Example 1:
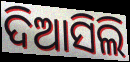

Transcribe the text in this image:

ଦିଆସିଲି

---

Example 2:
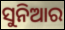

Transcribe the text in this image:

ସୁନିଆର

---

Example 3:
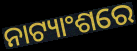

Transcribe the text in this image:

ନାଟ୍ୟାଂଶରେ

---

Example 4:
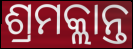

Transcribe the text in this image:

ଶ୍ରମକ୍ଲାନ୍ତ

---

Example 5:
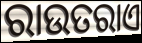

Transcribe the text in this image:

ରାଉତରାଏ